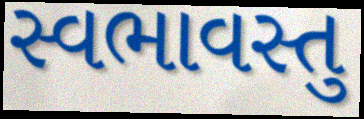
સ્વભાવસ્તુ